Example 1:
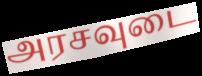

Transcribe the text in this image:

அரசவுடை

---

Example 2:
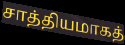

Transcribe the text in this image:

சாத்தியமாகத்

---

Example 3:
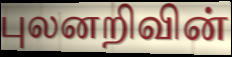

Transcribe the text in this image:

புலனறிவின்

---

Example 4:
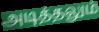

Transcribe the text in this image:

அடித்தலும்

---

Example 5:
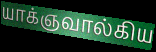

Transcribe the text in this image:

யாக்ஞவால்கிய